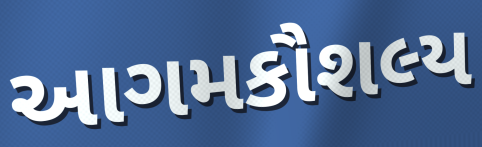
આગમકૌશલ્ય